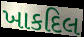
ખાકદિલ